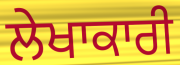
ਲੇਖਾਕਾਰੀ